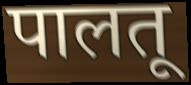
पालतू